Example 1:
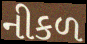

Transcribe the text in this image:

નીકળ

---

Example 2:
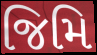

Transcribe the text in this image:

જિમિ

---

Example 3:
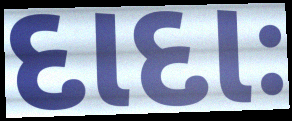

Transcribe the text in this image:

દાદાઃ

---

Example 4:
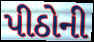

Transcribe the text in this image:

પીઠોની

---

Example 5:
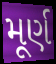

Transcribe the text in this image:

મૂર્ણ